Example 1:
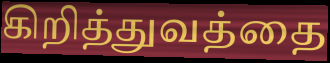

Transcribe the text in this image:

கிறித்துவத்தை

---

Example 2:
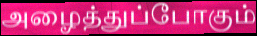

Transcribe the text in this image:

அழைத்துப்போகும்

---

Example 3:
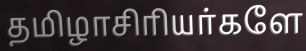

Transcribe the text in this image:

தமிழாசிரியர்களே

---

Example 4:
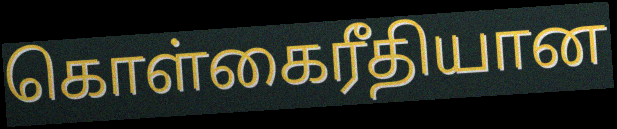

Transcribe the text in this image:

கொள்கைரீதியான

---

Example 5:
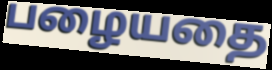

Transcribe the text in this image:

பழையதை